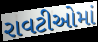
રાવટીઓમાં